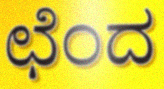
ಛೆಂದ